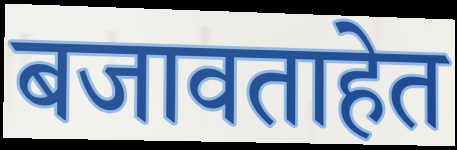
बजावताहेत